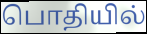
பொதியில்